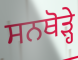
ਸਨਥੋੜ੍ਹੇ